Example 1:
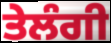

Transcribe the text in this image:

ਤੇਲੰਗੀ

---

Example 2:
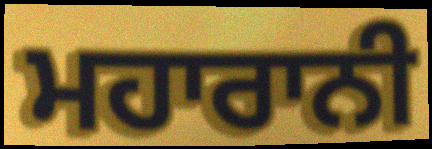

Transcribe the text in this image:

ਮਹਾਰਾਨੀ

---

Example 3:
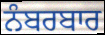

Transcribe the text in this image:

ਨੰਬਰਬਾਰ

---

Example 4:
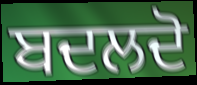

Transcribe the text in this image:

ਬਦਲਦੋ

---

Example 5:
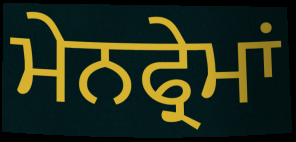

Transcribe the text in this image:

ਮੇਨਫ੍ਰੇਮਾਂ